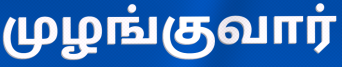
முழங்குவார்